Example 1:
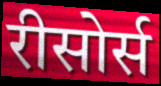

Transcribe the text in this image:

रीसोर्स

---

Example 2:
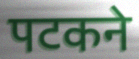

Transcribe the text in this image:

पटकने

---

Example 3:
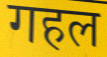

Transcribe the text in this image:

गहल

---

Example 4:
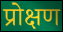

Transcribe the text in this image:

प्रोक्षण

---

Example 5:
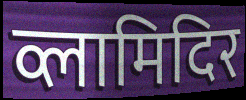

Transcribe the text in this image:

व्लामिदिर